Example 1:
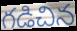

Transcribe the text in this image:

గడిచిన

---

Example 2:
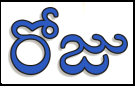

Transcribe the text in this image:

రోజు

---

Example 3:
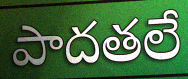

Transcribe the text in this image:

పాదతలే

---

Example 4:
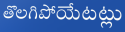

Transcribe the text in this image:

తొలగిపోయేటట్లు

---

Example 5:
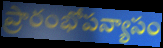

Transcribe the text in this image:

ప్రారంభోపన్యాసం